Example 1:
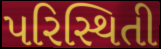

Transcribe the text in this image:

પરિસ્થિતી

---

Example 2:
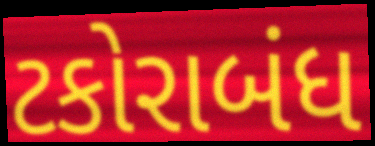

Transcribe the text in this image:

ટકોરાબંધ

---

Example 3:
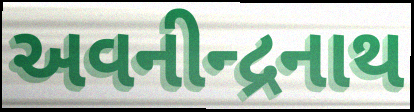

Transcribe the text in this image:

અવનીન્દ્રનાથ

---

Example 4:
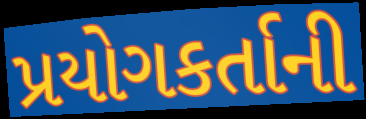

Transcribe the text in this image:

પ્રયોગકર્તાની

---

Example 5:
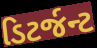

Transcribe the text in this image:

ડિટર્જન્ટ